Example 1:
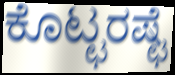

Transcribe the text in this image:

ಕೊಟ್ಟರಷ್ಟೆ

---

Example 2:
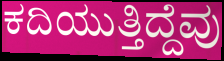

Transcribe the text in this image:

ಕದಿಯುತ್ತಿದ್ದೆವು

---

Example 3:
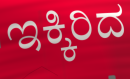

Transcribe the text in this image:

ಇಕ್ಕಿರಿದ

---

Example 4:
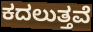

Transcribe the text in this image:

ಕದಲುತ್ತವೆ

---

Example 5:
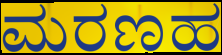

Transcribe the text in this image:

ಮರಣಹ